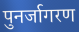
पुनर्जागरण